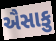
ઐસાકુ